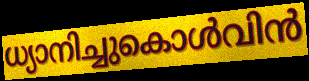
ധ്യാനിച്ചുകൊൾവിൻ